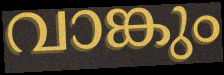
വാങ്കും